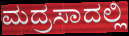
ಮದ್ರಸಾದಲ್ಲಿ